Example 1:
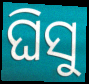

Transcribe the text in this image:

ଘିସୁ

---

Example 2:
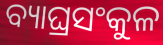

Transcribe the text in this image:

ବ୍ୟାଘ୍ରସଂକୁଳ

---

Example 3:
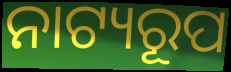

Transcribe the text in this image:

ନାଟ୍ୟରୂପ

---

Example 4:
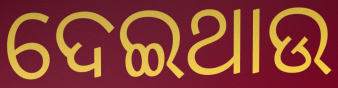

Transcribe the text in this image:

ଦେଇଥାଉ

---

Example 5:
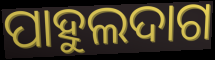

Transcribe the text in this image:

ପାହୁଲଦାଗ